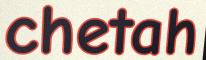
chetah